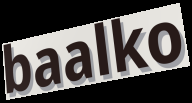
baalko